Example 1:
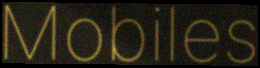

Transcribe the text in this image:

Mobiles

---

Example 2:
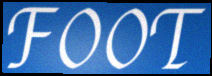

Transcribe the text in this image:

FOOT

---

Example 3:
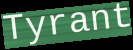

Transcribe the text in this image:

Tyrant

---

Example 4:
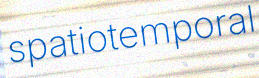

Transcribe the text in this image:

spatiotemporal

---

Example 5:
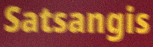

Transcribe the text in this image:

Satsangis